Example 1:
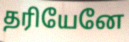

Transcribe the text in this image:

தரியேனே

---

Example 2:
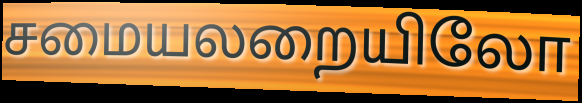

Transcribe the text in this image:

சமையலறையிலோ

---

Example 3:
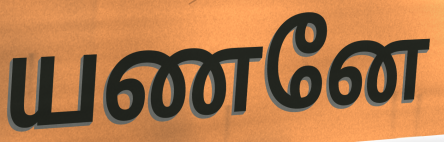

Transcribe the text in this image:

யணனே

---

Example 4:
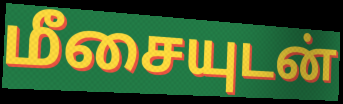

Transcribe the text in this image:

மீசையுடன்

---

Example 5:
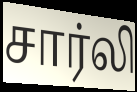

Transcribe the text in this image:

சார்லி